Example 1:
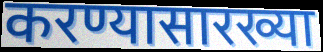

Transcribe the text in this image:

करण्यासारख्या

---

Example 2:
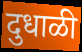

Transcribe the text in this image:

दुधाळी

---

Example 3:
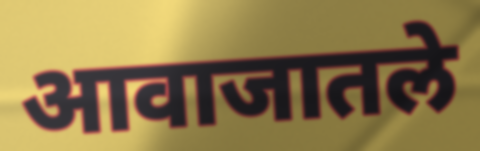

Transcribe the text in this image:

आवाजातले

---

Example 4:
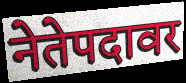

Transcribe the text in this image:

नेतेपदावर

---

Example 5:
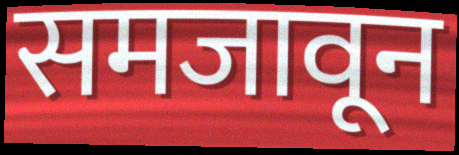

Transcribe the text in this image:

समजावून